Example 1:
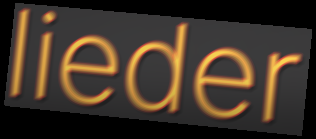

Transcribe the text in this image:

lieder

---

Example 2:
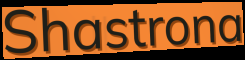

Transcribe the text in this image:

Shastrona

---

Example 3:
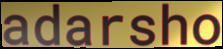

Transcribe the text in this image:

adarsho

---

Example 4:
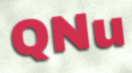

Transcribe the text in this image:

QNu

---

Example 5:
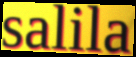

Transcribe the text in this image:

salila